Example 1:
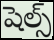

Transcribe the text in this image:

షెల్స్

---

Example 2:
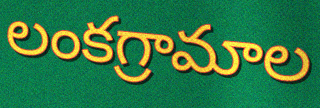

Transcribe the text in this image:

లంకగ్రామాల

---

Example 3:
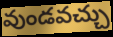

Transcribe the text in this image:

వుండవచ్చు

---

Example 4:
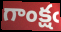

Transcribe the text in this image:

గాంక్షఁ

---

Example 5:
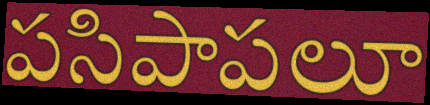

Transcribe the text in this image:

పసిపాపలూ